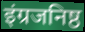
इंग्रजनिष्ठ